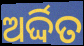
ଅର୍ଦ୍ଦିତ